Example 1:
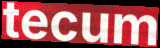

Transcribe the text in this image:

tecum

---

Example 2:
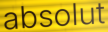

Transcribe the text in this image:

absolut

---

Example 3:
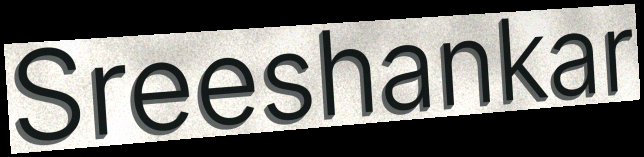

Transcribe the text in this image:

Sreeshankar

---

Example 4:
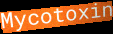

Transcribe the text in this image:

Mycotoxin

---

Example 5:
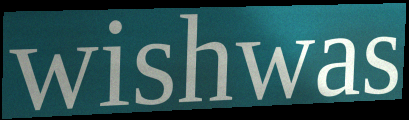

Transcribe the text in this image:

wishwas